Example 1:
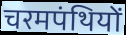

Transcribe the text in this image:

चरमपंथियों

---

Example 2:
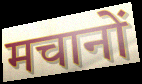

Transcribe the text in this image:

मचानों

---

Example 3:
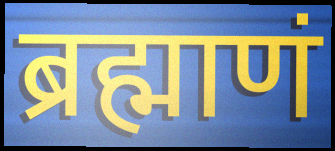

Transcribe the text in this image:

ब्रह्माणं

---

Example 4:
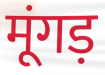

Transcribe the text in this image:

मूंगड़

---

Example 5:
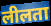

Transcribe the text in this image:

लीलता